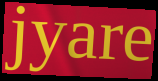
jyare